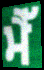
ਮੈੱ